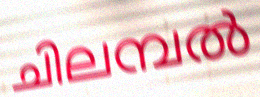
ചിലമ്പൽ